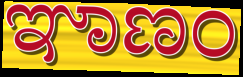
ಞಾಣಂ